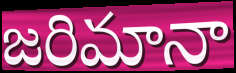
జరిమానా